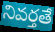
నివర్తతే